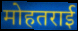
मोहतराई